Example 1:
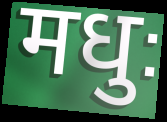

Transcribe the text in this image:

मधुः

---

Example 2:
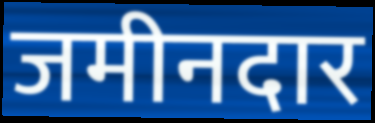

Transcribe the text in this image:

जमीनदार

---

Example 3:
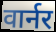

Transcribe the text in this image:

वार्नर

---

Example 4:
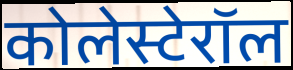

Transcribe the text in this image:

कोलेस्टेरॉल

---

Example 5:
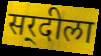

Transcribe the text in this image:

सर्दीला